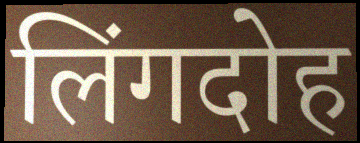
लिंगदोह